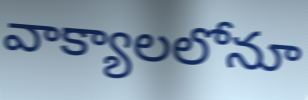
వాక్యాలలోనూ